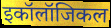
इकॉलॉजिकल